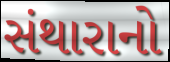
સંથારાનો